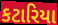
કટારિયા